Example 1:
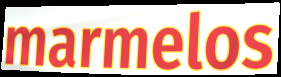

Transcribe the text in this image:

marmelos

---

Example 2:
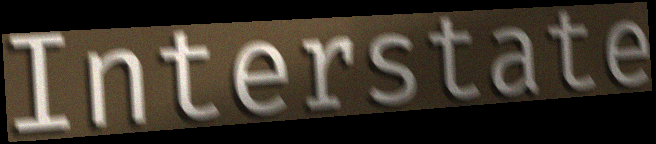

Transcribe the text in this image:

Interstate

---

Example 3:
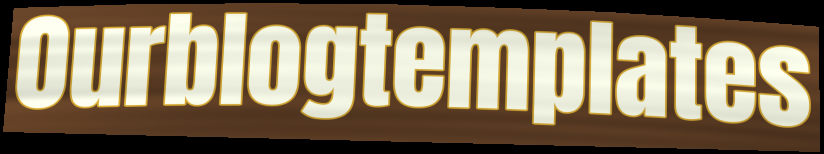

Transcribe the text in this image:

Ourblogtemplates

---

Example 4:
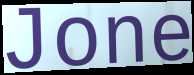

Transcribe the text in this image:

Jone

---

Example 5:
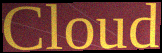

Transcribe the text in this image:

Cloud